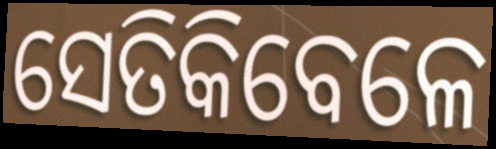
ସେତିକିବେଳେ